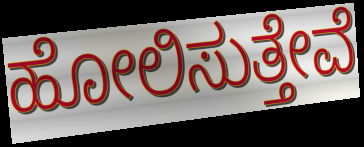
ಹೋಲಿಸುತ್ತೇವೆ